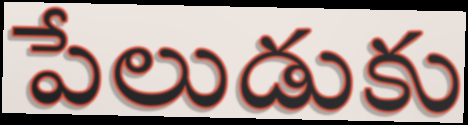
పేలుడుకు